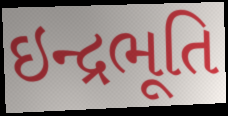
ઇન્દ્રભૂતિ